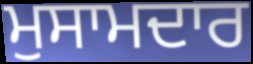
ਮੁਸਾਮਦਾਰ